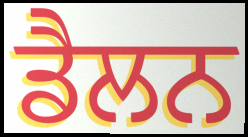
ਡੈਲਨ